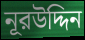
নূরউদ্দিন